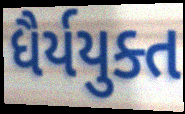
ધૈર્યયુક્ત